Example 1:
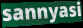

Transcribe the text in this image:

sannyasi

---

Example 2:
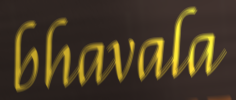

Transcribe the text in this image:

bhavala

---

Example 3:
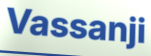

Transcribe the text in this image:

Vassanji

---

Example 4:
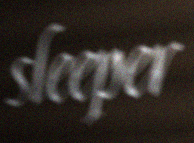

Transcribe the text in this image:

sleeper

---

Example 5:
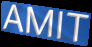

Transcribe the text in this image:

AMIT